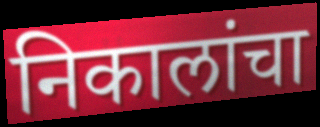
निकालांचा